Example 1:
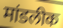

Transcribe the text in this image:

मांडलीक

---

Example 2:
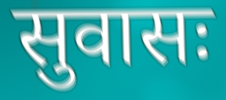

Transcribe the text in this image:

सुवासः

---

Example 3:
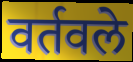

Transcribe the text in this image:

वर्तवले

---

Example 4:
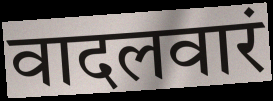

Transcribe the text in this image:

वादलवारं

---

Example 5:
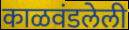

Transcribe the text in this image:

काळवंडलेली